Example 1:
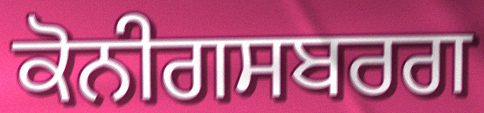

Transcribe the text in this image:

ਕੋਨੀਗਸਬਰਗ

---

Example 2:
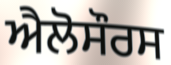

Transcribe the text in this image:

ਐਲੋਸੌਰਸ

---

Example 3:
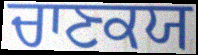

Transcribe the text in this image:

ਚਾਣਕਯ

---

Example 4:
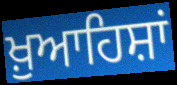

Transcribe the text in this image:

ਖ਼ੁਆਹਿਸ਼ਾਂ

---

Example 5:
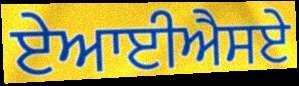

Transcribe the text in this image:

ਏਆਈਐਸਏ